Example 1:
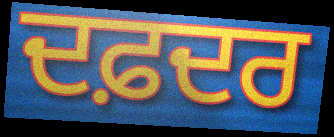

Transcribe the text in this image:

ਦਫ਼ਦਰ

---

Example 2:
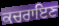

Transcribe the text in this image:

ਕਚਰਾਇਣ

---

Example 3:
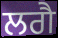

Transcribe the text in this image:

ਲਗੈ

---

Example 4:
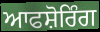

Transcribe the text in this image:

ਆਫਸ਼ੋਰਿੰਗ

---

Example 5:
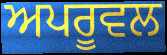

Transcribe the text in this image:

ਅਪਰੂਵਲ